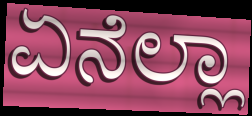
ಏನೆಲ್ಲಾ